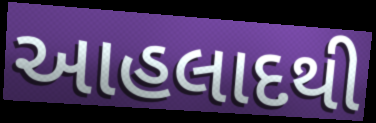
આહલાદથી